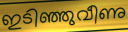
ഇടിഞ്ഞുവീണു